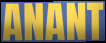
ANANT